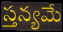
స్తన్యమే